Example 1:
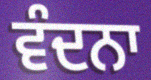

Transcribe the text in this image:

ਵੰਦਨਾ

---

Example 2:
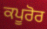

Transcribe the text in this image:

ਕਪੂਰੋਰ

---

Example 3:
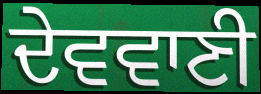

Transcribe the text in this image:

ਦੇਵਵਾਣੀ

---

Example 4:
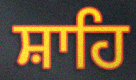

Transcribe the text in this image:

ਸ਼ਾਹਿ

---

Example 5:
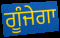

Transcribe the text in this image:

ਗੂੰਜੇਗਾ